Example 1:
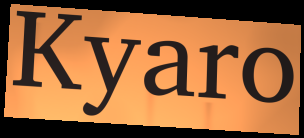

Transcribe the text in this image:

Kyaro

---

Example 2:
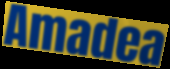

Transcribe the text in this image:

Amadea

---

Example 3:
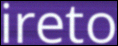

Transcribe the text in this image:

ireto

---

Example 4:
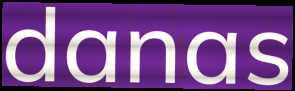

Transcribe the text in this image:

danas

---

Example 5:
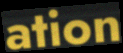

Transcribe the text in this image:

ation